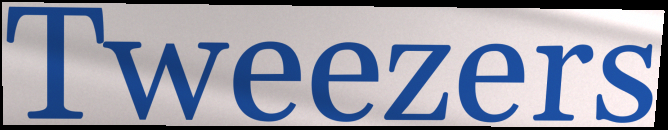
Tweezers